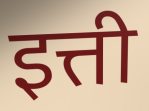
इत्ती